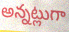
అన్నట్లుగా